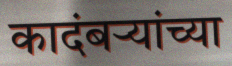
कादंबर्‍यांच्या